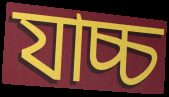
যাচ্চ